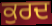
ਕੁਰਦ